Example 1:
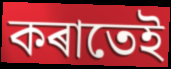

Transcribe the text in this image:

কৰাতেই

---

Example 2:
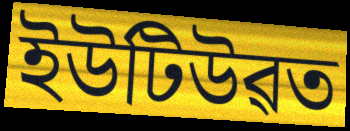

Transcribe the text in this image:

ইউটিউৱত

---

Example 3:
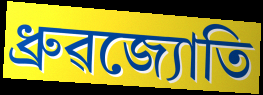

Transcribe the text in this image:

ধ্ৰুৱজ্যোতি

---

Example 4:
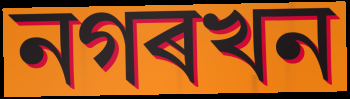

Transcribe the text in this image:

নগৰখন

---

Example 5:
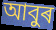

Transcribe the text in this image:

আবুৰ